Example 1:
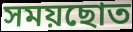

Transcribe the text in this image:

সময়ছোত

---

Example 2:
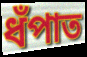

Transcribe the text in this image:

ধঁপাত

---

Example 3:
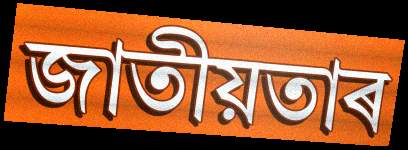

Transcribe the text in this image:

জাতীয়তাৰ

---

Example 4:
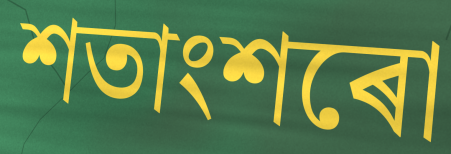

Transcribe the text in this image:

শতাংশৰো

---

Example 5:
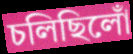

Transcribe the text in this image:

চলিছিলোঁ